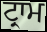
ਟ੍ਰਾਮ